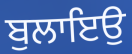
ਬੁਲਾਇਉ